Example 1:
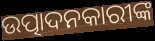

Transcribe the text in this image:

ଉତ୍ପାଦନକାରୀଙ୍କ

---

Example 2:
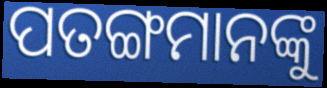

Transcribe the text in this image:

ପତଙ୍ଗମାନଙ୍କୁ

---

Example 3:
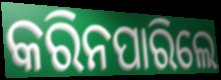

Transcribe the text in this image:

କରିନପାରିଲେ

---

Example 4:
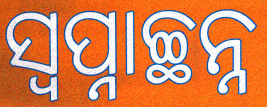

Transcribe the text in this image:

ସ୍ଵପ୍ନାଚ୍ଛନ୍ନ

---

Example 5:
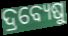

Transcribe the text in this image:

ଦ୍ରବ୍ୟେଷୁ